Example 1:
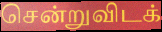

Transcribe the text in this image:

சென்றுவிடக்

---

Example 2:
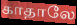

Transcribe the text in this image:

காதாலே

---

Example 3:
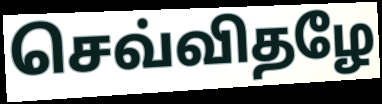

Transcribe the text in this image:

செவ்விதழே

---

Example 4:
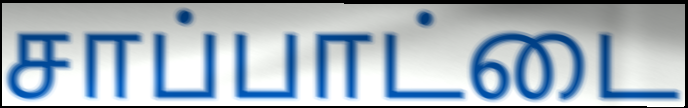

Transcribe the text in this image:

சாப்பாட்டை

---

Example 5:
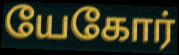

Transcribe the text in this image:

யேகோர்